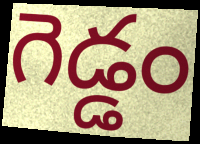
గెడ్డం